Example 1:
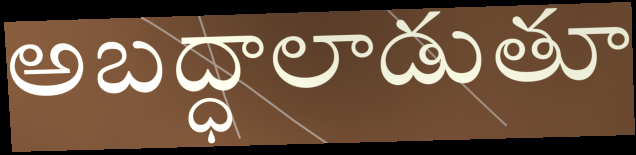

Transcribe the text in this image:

అబద్ధాలాడుతూ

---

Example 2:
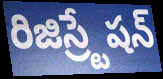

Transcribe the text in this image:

రిజిస్ర్టేషన్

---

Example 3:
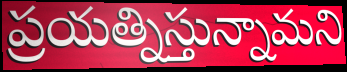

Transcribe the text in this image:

ప్రయత్నిస్తున్నామని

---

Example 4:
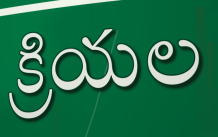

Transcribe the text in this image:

క్రియల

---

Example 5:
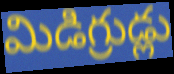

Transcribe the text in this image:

మిడిగ్రుడ్లు